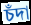
চঁদা